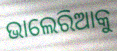
ଭାଲେରିଆକୁ